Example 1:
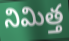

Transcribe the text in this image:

నిమిత్త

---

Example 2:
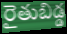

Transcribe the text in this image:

రైతుబిడ్డ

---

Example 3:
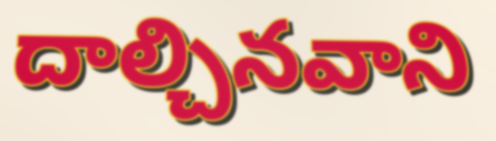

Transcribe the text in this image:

దాల్చినవాని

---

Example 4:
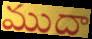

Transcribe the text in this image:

ముదా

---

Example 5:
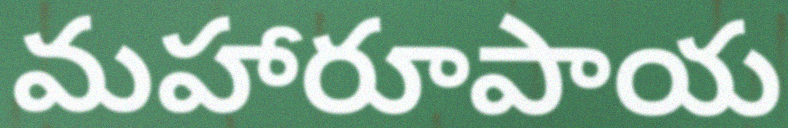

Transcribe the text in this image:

మహారూపాయ